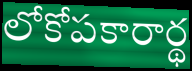
లోకోపకారార్థ